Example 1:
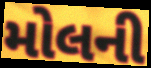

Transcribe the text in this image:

મોલની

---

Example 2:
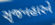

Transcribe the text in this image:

સૃજનહારને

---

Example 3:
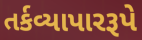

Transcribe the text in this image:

તર્કવ્યાપારરૂપે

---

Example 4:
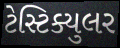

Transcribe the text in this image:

ટેસ્ટિક્યુલર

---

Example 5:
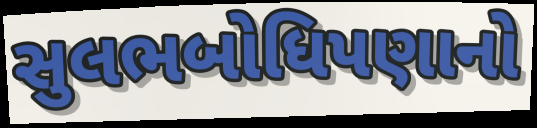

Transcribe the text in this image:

સુલભબોધિપણાનો